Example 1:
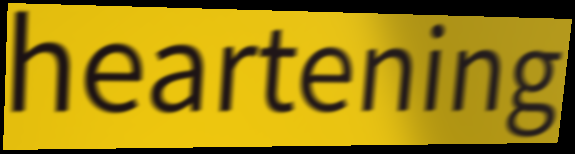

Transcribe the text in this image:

heartening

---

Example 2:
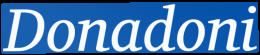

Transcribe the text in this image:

Donadoni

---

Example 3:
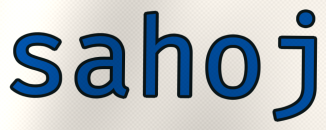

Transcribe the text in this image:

sahoj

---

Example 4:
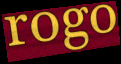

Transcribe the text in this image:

rogo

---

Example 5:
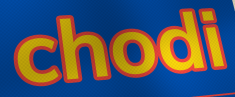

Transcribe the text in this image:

chodi